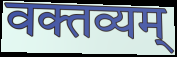
वक्तव्यम्